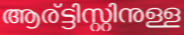
ആര്ട്ടിസ്റ്റിനുള്ള